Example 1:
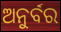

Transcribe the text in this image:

ଅନୁର୍ବର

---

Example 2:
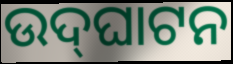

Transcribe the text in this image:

ଉଦ୍‌ଘାଟନ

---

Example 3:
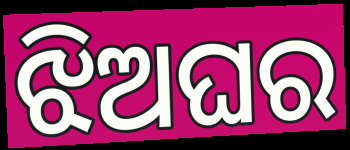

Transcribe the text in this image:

ଝିଅଘର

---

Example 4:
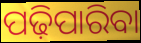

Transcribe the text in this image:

ପଢ଼ିପାରିବା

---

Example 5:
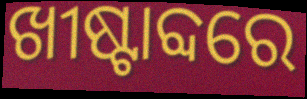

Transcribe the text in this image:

ଖୀଷ୍ଟାବ୍ଦରେ